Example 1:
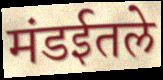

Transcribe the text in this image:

मंडईतले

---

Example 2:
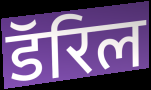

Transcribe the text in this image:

डॅरिल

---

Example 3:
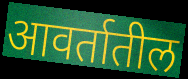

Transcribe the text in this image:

आवर्तातील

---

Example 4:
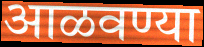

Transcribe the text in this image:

आळवण्या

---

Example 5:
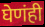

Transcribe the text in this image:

घेणंही